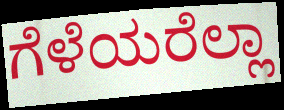
ಗೆಳೆಯರೆಲ್ಲಾ